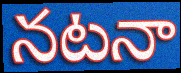
నటనా